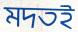
মদতই